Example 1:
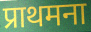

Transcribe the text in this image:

प्राथमना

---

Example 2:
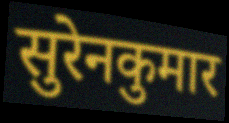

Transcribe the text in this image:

सुरेनकुमार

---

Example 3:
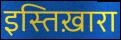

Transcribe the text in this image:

इस्तिख़ारा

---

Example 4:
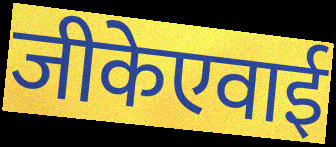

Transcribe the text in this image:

जीकेएवाई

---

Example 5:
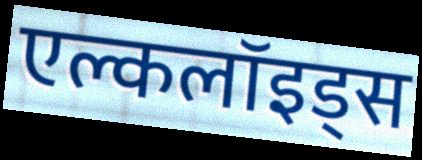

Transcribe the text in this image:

एल्कलॉइड्स